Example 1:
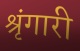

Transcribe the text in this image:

श्रृंगारी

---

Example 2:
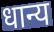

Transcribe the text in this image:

धान्य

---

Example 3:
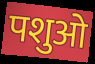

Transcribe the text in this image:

पशुओ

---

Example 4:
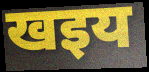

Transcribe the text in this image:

खइय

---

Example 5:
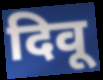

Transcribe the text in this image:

दिवू